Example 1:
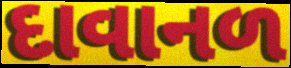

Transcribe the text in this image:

દાવાનળ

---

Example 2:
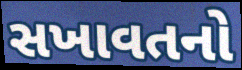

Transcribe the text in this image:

સખાવતનો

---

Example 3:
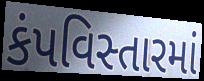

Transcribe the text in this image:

કંપવિસ્તારમાં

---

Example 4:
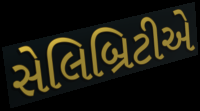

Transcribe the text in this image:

સેલિબ્રિટીએ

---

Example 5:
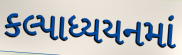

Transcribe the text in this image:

કલ્પાધ્યયનમાં